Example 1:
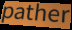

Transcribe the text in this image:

pather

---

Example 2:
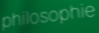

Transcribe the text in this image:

philosophie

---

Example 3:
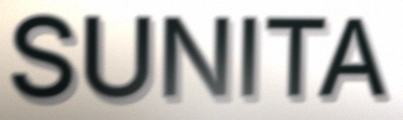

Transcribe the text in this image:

SUNITA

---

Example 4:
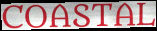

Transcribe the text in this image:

COASTAL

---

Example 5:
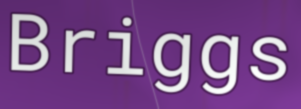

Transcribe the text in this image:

Briggs